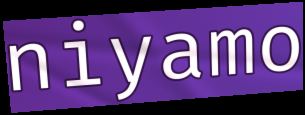
niyamo